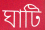
ঘাটি